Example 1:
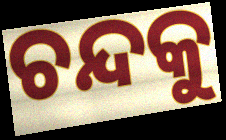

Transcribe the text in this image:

ଚନ୍ଦକୁ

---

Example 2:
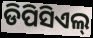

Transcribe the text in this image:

ଡିପିସିଏଲ୍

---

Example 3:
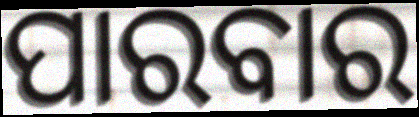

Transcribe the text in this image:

ପାରବାର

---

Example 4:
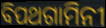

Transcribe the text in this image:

ବିପଥଗାମିନୀ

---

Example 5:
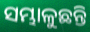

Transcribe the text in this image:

ସମ୍ଭାଳୁଛନ୍ତି